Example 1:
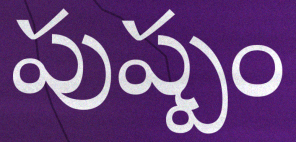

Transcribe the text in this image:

పుష్పం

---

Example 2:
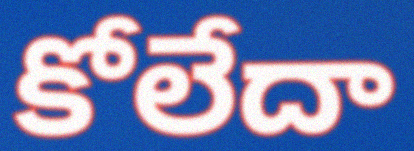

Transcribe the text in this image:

కోలేదా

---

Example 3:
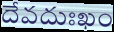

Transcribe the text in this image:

దేవదుఃఖం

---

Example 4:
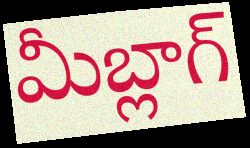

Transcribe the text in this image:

మీబ్లాగ్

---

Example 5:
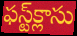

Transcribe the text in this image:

ఫస్ట్‌క్లాసు